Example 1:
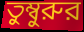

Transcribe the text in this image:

তুম্বুরুর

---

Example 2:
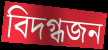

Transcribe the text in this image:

বিদগ্ধজন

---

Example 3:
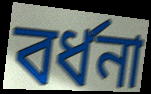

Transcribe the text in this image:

বর্ধনা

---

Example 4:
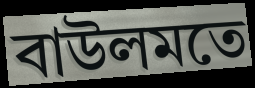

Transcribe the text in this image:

বাউলমতে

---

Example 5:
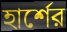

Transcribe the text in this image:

হার্শের